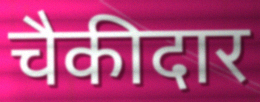
चैकीदार